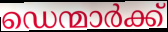
ഡെന്മാർക്ക്